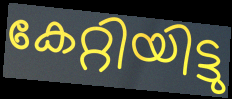
കേറ്റിയിട്ടു